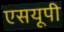
एसयूपी